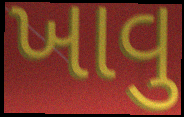
ખાવુ